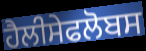
ਹੈਲੀਸੇਫਲੋਬਸ